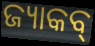
ଜ୍ୟାକବ୍